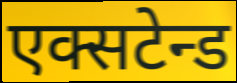
एक्सटेन्ड